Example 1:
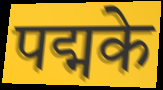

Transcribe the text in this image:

पद्मके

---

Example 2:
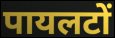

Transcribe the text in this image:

पायलटों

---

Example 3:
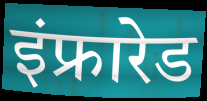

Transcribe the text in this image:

इंफ्रारेड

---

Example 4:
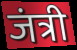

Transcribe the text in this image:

जंत्री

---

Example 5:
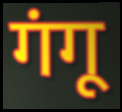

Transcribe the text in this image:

गंगू